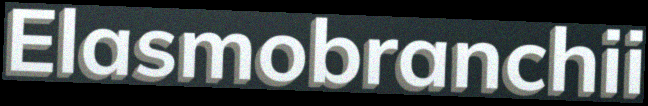
Elasmobranchii